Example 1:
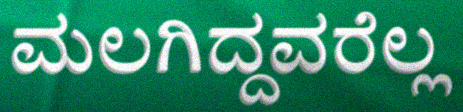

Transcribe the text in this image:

ಮಲಗಿದ್ದವರೆಲ್ಲ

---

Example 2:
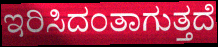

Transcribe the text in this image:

ಇರಿಸಿದಂತಾಗುತ್ತದೆ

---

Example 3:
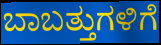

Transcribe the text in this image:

ಬಾಬತ್ತುಗಳಿಗೆ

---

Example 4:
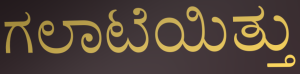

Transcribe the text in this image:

ಗಲಾಟೆಯಿತ್ತು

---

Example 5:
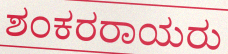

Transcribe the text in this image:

ಶಂಕರರಾಯರು